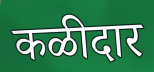
कळीदार